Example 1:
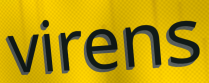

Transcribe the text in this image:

virens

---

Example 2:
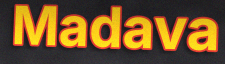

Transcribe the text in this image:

Madava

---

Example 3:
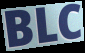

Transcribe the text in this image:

BLC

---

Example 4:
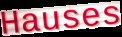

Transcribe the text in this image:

Hauses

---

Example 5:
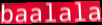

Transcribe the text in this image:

baalala